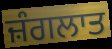
ਜ਼ੰਗਲਾਤ